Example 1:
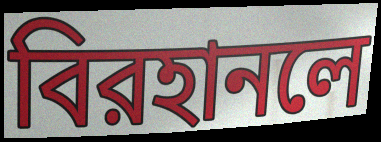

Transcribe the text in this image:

বিরহানলে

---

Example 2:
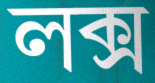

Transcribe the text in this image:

লক্স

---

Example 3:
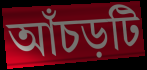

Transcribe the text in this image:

আঁচড়টি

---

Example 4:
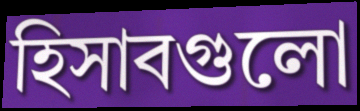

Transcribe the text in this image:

হিসাবগুলো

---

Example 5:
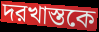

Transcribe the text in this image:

দরখাস্তকে